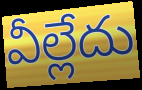
వీల్లేదు